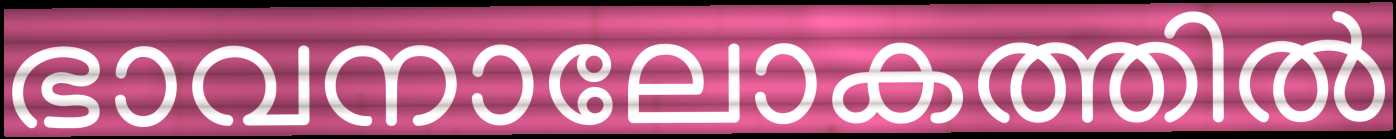
ഭാവനാലോകത്തിൽ